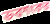
ভবশংকর